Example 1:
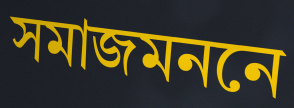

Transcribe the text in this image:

সমাজমননে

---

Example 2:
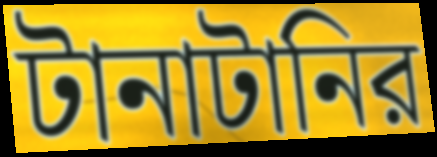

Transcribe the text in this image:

টানাটানির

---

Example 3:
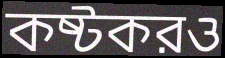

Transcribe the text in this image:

কষ্টকরও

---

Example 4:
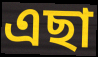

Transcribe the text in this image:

এছা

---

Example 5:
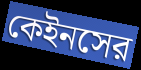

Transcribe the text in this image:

কেইনসের